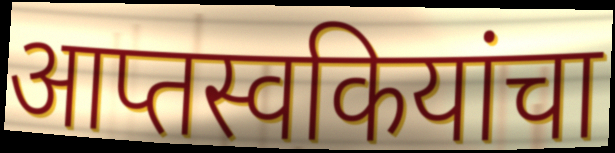
आप्तस्वकियांचा